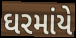
ઘરમાંયે